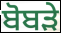
ਬੋਬੜੇ